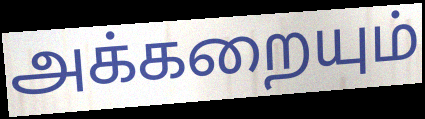
அக்கறையும்